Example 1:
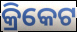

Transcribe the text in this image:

କ୍ରିକେଟ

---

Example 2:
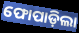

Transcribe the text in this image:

ଫୋପାଡ଼ିଲା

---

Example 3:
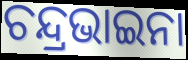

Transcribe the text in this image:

ଚନ୍ଦ୍ରଭାଇନା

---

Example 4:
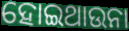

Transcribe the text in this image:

ହୋଇଥାଉନା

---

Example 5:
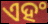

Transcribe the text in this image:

ଏହଂ